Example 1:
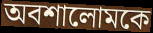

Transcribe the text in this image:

অবশালোমকে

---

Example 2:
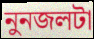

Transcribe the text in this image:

নুনজলটা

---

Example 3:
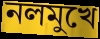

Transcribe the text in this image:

নলমুখে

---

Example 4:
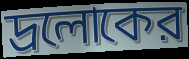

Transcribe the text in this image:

দ্রলোকের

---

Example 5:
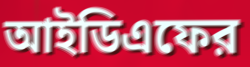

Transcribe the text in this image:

আইডিএফের